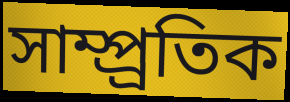
সাম্প্র্রতিক